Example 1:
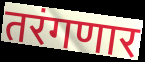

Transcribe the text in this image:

तरंगणार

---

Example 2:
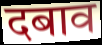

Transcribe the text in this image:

दबाव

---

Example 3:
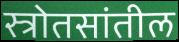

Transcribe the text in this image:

स्त्रोतसांतील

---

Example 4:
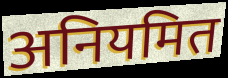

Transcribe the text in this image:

अनियमित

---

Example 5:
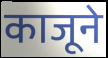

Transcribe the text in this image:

काजूने